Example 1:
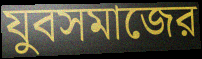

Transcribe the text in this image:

যুবসমাজের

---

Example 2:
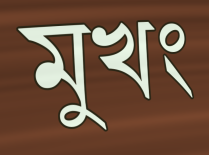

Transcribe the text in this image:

মুখং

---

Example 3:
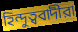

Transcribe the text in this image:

হিন্দুত্ববাদীরা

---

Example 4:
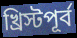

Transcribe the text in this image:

খ্রিস্টপূর্ব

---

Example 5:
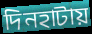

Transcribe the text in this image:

দিনহাটায়